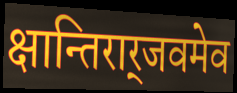
क्षान्तिरार्जवमेव